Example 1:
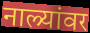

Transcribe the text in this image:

नाल्यांवर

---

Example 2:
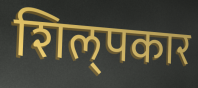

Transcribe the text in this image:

शिल्पकार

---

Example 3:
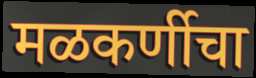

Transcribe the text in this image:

मळकर्णीचा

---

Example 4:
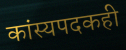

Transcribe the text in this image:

कांस्यपदकही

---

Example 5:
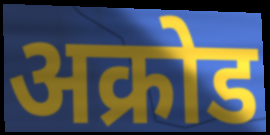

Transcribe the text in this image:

अक्रोड